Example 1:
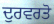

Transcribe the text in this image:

ਦੁਰਵਰਤੋ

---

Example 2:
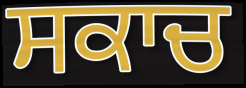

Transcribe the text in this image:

ਸਕਾਚ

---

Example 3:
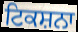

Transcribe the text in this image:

ਟਿਕਸ਼ਨਾ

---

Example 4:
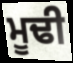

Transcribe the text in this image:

ਮੂਢੀ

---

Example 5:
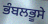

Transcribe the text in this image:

ਭੰਬਲਭੂਸੇ